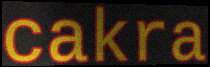
cakra